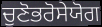
ਚੁਣੋਭਰੋਸੇਯੋਗ